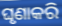
ଘୃଣାକରି